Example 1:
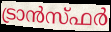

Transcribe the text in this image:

ട്രാൻസ്ഫർ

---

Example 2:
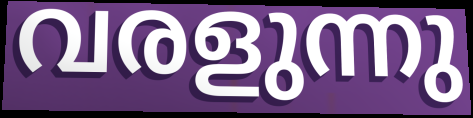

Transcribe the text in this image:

വരളുന്നു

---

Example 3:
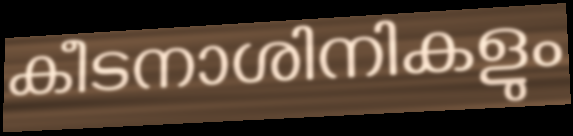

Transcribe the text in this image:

കീടനാശിനികളും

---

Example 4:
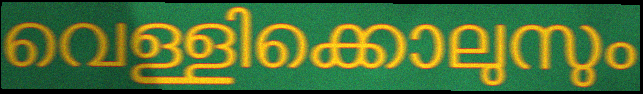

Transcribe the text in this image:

വെള്ളിക്കൊലുസും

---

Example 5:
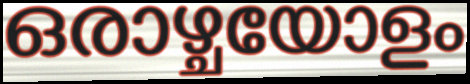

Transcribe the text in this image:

ഒരാഴ്ചയോളം